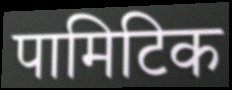
पामिटिक